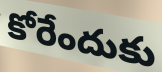
కోరేందుకు